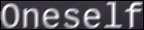
Oneself